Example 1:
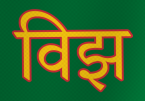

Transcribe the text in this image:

विझ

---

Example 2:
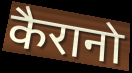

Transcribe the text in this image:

कैरानो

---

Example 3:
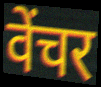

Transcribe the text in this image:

वेंचर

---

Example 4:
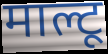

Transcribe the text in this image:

माल्टू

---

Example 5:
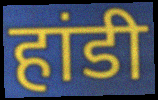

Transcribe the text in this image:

हांडी